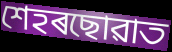
শেহৰছোৱাত